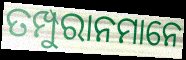
ତମ୍ପୁରାନମାନେ